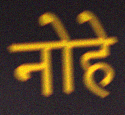
नोहे